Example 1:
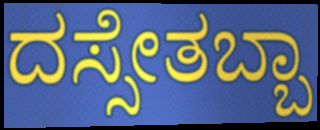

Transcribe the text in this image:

ದಸ್ಸೇತಬ್ಬಾ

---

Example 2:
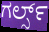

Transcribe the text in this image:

ಗರ್ಲ್ಸ್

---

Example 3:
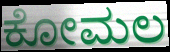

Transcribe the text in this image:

ಕೋಮಲ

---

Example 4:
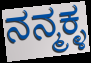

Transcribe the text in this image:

ನನ್ಮಕ್ಳ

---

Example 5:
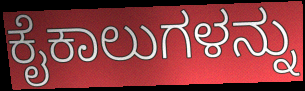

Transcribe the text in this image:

ಕೈಕಾಲುಗಳನ್ನು